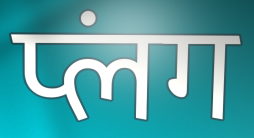
प्लंग